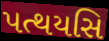
પત્થયસિ